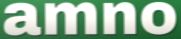
amno